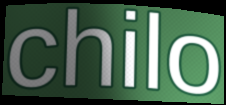
chilo